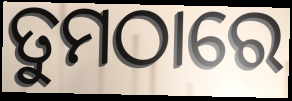
ତୁମଠାରେ